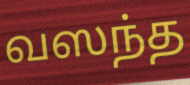
வஸந்த